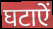
घटाऐं